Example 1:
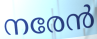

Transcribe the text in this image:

നരേൻ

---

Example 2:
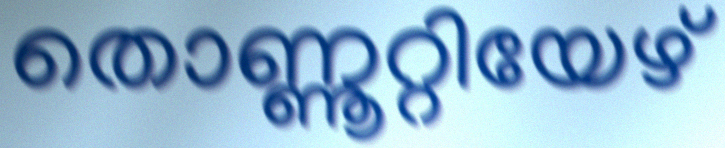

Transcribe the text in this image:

തൊണ്ണൂറ്റിയേഴ്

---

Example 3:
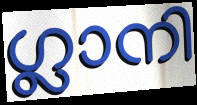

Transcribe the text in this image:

ഗ്ലാനി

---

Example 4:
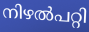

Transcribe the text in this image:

നിഴൽപറ്റി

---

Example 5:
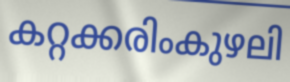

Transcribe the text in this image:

കറ്റക്കരിംകുഴലി